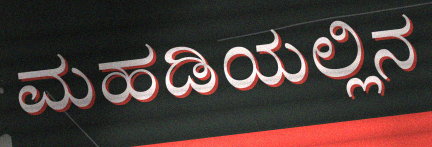
ಮಹಡಿಯಲ್ಲಿನ